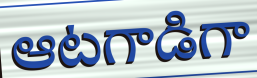
ఆటగాడిగా